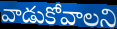
వాడుకోవాలని